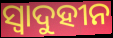
ସ୍ୱାଦୁହୀନ